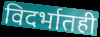
विदर्भातही